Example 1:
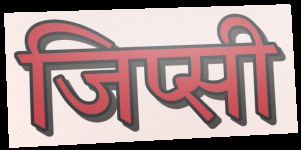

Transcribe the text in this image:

जिप्सी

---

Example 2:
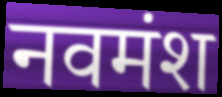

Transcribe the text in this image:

नवमंश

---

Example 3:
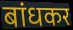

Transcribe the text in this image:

बांधकर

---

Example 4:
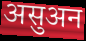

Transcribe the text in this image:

असुअन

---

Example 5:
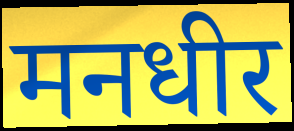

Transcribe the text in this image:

मनधीर